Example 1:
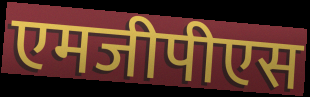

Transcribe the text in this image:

एमजीपीएस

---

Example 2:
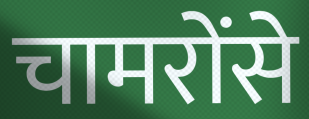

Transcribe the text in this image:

चामरोंसे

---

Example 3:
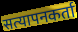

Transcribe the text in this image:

सत्यापनकर्ता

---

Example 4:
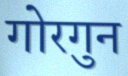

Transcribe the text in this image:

गोरगुन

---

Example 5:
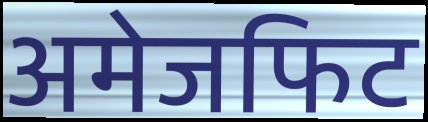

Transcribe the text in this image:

अमेजफिट